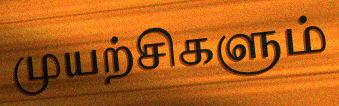
முயற்சிகளும்